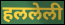
हललेली